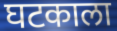
घटकाला